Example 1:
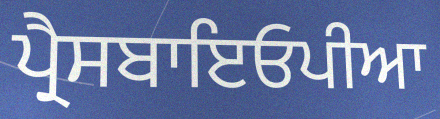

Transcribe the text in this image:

ਪ੍ਰੈਸਬਾਇਓਪੀਆ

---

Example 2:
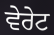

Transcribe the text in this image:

ਵੇਰੇਟ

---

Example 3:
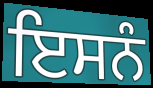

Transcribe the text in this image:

ਇਸਨੰ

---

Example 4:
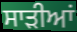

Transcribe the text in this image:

ਸਾਡ਼ੀਆਂ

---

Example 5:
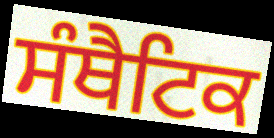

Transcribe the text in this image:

ਸੰਥੈਟਿਕ